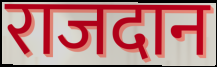
राजदान